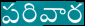
పరివార